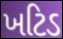
ખટિડ